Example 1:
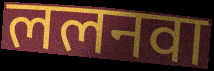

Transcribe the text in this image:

ललनवा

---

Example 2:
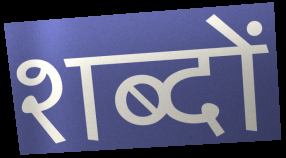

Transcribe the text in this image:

शब्दों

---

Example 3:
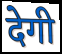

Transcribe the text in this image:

देगी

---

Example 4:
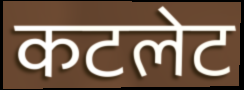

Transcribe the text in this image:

कटलेट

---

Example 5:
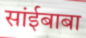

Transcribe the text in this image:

सांईबाबा